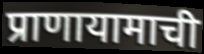
प्राणायामाची